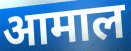
आमाल